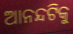
ଆନନ୍ଦଟିକୁ